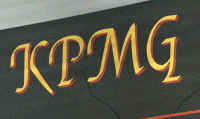
KPMG